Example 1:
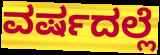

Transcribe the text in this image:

ವರ್ಷದಲ್ಲೆ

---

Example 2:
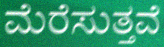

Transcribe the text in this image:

ಮೆರೆಸುತ್ತವೆ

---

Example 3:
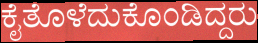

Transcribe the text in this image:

ಕೈತೊಳೆದುಕೊಂಡಿದ್ದರು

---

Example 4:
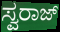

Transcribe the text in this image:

ಸ್ವರಾಜ್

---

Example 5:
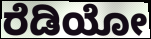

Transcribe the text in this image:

ರೆಡಿಯೋ